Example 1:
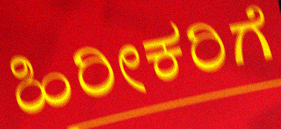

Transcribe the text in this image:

ಹಿರೀಕರಿಗೆ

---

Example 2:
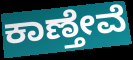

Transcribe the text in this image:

ಕಾಣ್ತೇವೆ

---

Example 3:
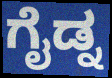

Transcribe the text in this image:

ಗೈಡ್ನ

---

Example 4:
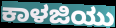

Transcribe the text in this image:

ಕಾಳಜಿಯು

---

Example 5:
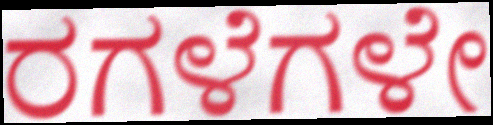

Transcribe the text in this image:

ರಗಳೆಗಳೇ